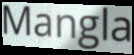
Mangla